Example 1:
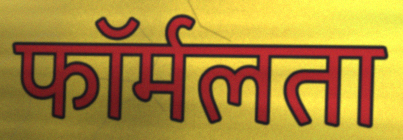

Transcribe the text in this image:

फॉर्मलता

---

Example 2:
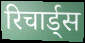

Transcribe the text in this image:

रिचार्ड्स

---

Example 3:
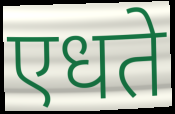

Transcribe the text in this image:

एधते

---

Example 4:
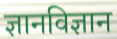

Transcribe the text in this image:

ज्ञानविज्ञान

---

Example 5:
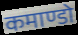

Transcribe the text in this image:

कमाण्डो